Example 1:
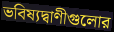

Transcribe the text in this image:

ভবিষ্যদ্বাণীগুলোর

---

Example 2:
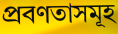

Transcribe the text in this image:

প্রবণতাসমূহ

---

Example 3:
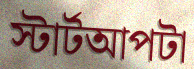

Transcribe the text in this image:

স্টার্টআপটা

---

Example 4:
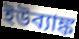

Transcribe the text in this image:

ইউব্যাঙ্ক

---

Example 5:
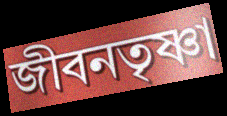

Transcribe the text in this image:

জীবনতৃষ্ণা